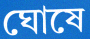
ঘোষে